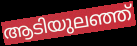
ആടിയുലഞ്ഞ്